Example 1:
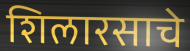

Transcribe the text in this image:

शिलारसाचे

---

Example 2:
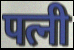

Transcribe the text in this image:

पत्नी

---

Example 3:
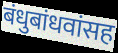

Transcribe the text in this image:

बंधुबांधवांसह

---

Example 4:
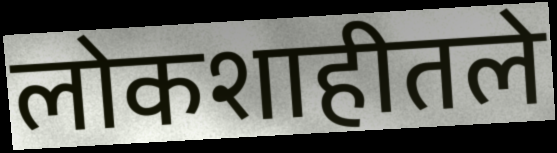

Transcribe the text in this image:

लोकशाहीतले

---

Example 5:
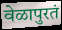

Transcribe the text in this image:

वेळापुरतं